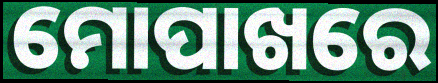
ମୋପାଖରେ